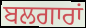
ਬਲਗਾਰਾਂ